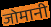
जोमानी